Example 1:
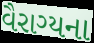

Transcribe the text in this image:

વૈરાગ્યના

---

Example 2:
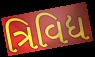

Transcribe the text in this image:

ત્રિવિદ્ય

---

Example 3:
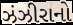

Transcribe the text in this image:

ઝંઝીરાનો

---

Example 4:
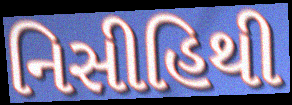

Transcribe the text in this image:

નિસીહિથી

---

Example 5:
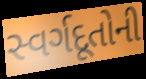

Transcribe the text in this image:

સ્વર્ગદૂતોની